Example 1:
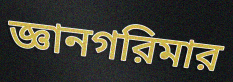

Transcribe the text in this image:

জ্ঞানগরিমার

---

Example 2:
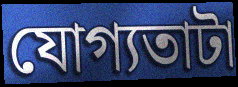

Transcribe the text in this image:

যোগ্যতাটা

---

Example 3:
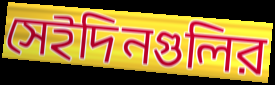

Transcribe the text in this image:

সেইদিনগুলির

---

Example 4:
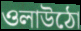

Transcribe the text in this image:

ওলাউঠো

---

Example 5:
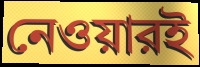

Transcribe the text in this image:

নেওয়ারই